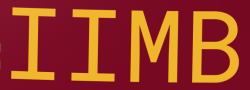
IIMB